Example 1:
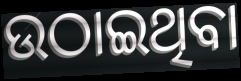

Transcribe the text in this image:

ଉଠାଇଥିବା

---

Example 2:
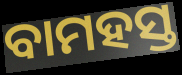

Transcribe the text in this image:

ବାମହସ୍ତ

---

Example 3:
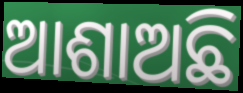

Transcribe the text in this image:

ଆଶାଅଛି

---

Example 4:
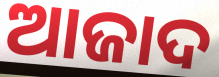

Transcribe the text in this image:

ଆଜାଦ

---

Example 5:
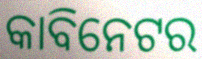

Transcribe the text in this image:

କାବିନେଟର